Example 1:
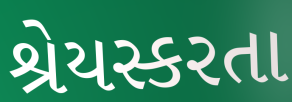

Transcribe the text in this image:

શ્રેયસ્કરતા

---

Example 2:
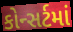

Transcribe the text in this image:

કોન્સર્ટમાં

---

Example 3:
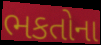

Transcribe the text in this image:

ભકતોના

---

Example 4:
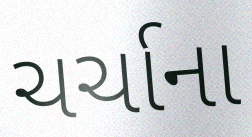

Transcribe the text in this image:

ચર્ચાના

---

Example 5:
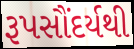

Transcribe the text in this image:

રૂપસૌંદર્યથી